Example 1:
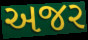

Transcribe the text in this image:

અજર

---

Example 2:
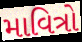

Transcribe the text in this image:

માવિત્રો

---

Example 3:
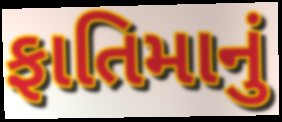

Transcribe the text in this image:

ફાતિમાનું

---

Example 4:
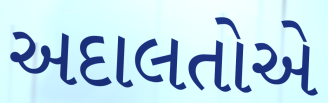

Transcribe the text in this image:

અદાલતોએ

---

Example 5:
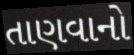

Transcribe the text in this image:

તાણવાનો